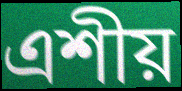
এশীয়